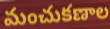
మంచుకణాల